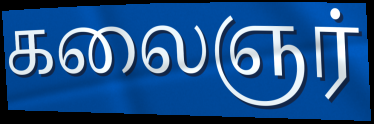
கலைஞர்